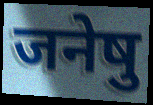
जनेषु